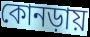
কোনড়ায়